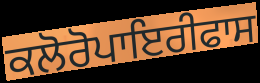
ਕਲੋਰੋਪਾਇਰੀਫਾਸ